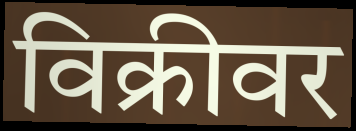
विक्रीवर